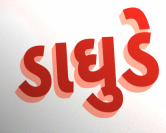
ડાઘુડે